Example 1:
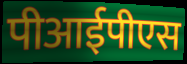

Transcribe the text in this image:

पीआईपीएस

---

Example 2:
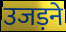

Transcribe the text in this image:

उजड़ने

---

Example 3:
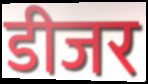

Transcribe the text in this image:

डीजर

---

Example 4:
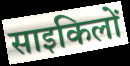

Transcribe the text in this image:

साइकिलों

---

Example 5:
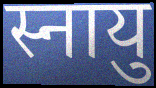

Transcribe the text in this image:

स्नायु